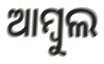
ଆମ୍ବୁଲ